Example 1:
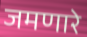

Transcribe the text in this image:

जमणारे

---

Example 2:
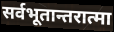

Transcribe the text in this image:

सर्वभूतान्तरात्मा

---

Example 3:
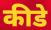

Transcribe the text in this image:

कीडे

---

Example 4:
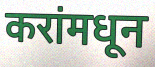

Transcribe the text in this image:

करांमधून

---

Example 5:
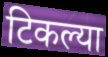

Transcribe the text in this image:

टिकल्या